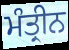
ਮੰਤ੍ਰੀਨ